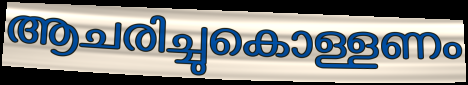
ആചരിച്ചുകൊള്ളണം